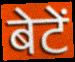
बेटें